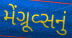
મેંગ્રૂવ્સનું